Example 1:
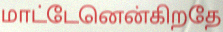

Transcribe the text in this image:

மாட்டேனென்கிறதே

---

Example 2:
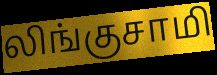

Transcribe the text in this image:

லிங்குசாமி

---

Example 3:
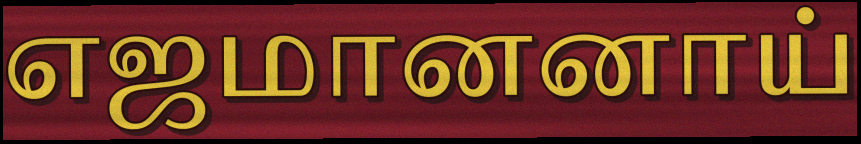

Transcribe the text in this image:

எஜமானனாய்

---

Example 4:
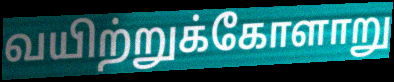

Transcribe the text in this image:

வயிற்றுக்கோளாறு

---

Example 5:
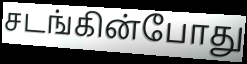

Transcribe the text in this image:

சடங்கின்போது